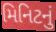
મિનિટનું